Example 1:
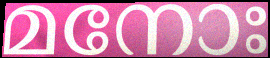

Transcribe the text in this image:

മനോഃ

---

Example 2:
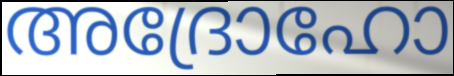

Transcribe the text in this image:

അദ്രോഹോ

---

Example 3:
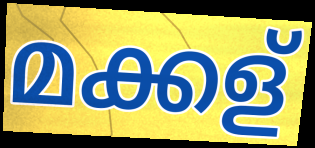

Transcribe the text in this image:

മക്കള്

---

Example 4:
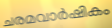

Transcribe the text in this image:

ചരമവാർഷികം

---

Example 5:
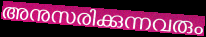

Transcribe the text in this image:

അനുസരിക്കുന്നവരും